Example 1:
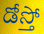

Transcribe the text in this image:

డోస్తో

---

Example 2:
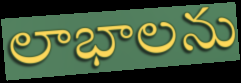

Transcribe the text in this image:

లాభాలను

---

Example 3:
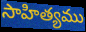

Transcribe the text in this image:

సాహిత్యము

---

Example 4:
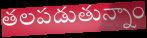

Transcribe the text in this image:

తలపడుతున్నాం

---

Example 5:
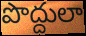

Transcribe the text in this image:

పొద్దులా